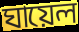
ঘায়েল